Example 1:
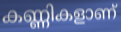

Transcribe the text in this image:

കണ്ണികളാണ്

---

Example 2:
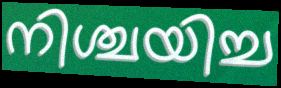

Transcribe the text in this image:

നിശ്ചയിച്ച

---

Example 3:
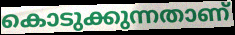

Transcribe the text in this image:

കൊടുക്കുന്നതാണ്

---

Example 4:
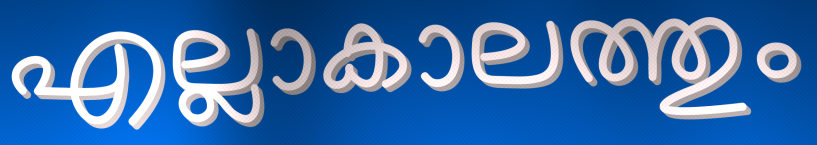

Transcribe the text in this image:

എല്ലാകാലത്തും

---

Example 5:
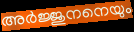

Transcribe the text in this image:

അർജ്ജുനനെയും